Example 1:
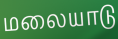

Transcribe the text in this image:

மலையாடு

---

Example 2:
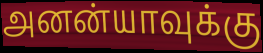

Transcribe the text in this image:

அனன்யாவுக்கு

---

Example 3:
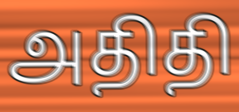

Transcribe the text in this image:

அதிதி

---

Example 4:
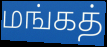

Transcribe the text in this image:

மங்கத்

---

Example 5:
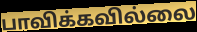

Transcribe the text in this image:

பாவிக்கவில்லை